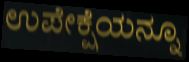
ಉಪೇಕ್ಷೆಯನ್ನೂ